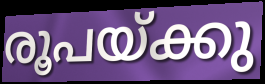
രൂപയ്ക്കു